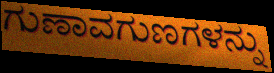
ಗುಣಾವಗುಣಗಳನ್ನು